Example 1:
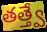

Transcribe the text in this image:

తత్త్వే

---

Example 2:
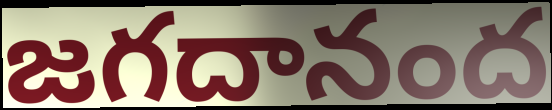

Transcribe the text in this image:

జగదానంద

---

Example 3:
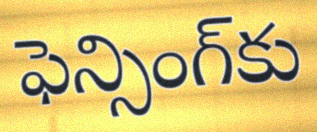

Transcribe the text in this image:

ఫెన్సింగ్‌కు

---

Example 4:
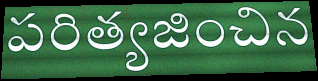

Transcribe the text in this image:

పరిత్యజించిన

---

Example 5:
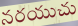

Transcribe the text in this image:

నరయుచు